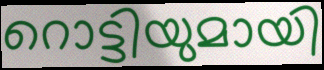
റൊട്ടിയുമായി